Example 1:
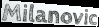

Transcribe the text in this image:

Milanovic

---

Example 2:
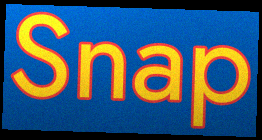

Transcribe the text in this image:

Snap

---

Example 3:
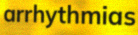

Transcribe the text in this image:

arrhythmias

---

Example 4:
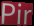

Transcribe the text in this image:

Pir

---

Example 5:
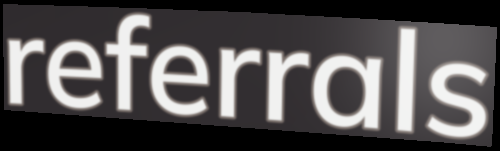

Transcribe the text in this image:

referrals